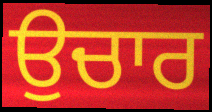
ਉਚਾਰ